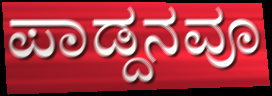
ಪಾಡ್ದನವೂ